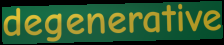
degenerative